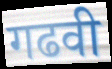
गढवी